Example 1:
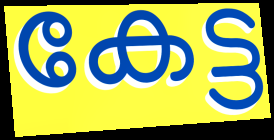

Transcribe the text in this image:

കേട്ട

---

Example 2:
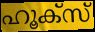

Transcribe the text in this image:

ഹൂക്സ്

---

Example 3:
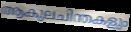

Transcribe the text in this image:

ആകുലചിന്തകളും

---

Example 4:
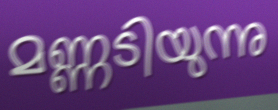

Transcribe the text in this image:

മണ്ണടിയുന്നു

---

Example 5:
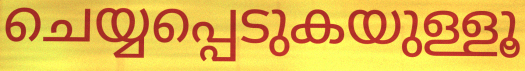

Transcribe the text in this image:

ചെയ്യപ്പെടുകയുള്ളൂ